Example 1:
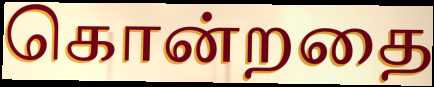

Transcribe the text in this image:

கொன்றதை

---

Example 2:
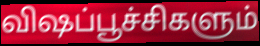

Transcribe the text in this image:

விஷப்பூச்சிகளும்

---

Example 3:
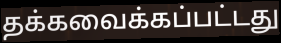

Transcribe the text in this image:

தக்கவைக்கப்பட்டது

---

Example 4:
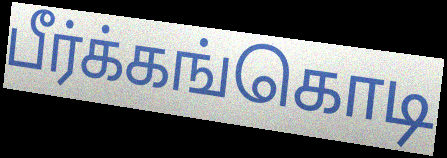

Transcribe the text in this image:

பீர்க்கங்கொடி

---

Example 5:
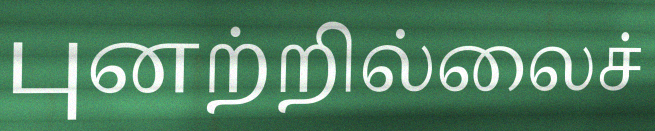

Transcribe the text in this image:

புனற்றில்லைச்